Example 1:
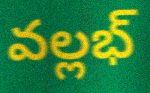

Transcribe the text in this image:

వల్లభ్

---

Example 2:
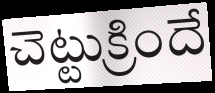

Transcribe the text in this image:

చెట్టుక్రిందే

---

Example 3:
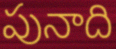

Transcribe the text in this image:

పునాది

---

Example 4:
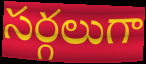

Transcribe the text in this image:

సర్గలుగా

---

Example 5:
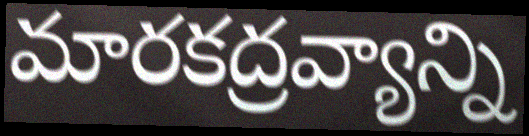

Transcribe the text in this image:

మారకద్రవ్యాన్ని